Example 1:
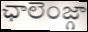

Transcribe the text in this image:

ఛాలెంజ్గా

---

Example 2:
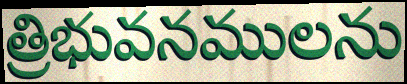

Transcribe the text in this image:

త్రిభువనములను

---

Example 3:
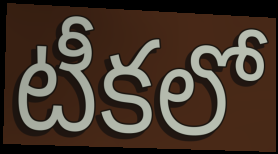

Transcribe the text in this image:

టీకలో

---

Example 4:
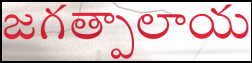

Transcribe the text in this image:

జగత్పాలాయ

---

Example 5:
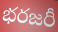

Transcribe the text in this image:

భరజరీ